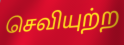
செவியுற்ற